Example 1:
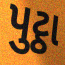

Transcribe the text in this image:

પુટ્ઠા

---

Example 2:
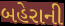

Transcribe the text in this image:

બહેરાની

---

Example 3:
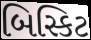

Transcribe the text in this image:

બિસ્કિટ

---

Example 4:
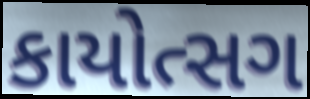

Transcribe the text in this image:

કાયોત્સગ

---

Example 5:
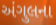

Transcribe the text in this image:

અંગુલના